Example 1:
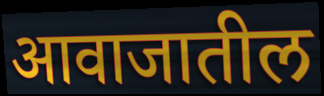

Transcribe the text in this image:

आवाजातील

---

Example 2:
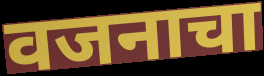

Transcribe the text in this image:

वजनाचा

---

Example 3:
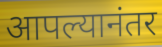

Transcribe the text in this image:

आपल्यानंतर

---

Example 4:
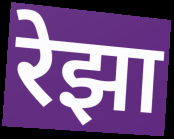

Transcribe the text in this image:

रेझा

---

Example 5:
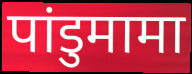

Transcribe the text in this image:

पांडुमामा